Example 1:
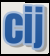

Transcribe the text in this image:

cij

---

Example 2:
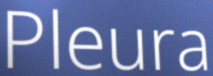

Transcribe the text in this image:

Pleura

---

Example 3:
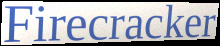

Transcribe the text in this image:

Firecracker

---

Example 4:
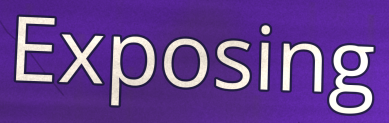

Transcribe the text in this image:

Exposing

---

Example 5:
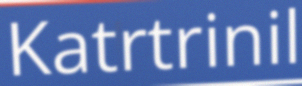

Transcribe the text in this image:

Katrtrinil